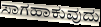
ಸಾಗಹಾಕುವುದು